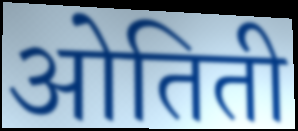
ओतिती